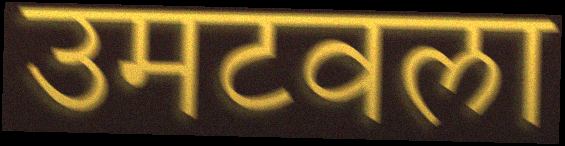
उमटवला